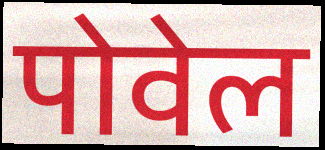
पोवेल